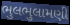
ભુલભુલામણી